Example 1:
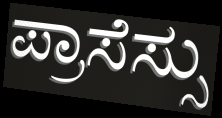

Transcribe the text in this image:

ಪ್ರಾಸೆಸ್ಸು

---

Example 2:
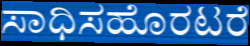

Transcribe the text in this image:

ಸಾಧಿಸಹೊರಟರೆ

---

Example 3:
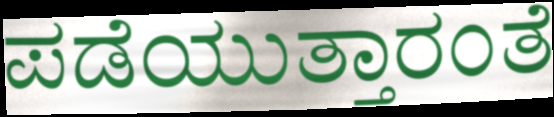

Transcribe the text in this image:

ಪಡೆಯುತ್ತಾರಂತೆ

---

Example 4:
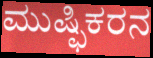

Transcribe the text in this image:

ಮುಷ್ಫಿಕರನ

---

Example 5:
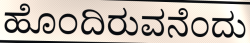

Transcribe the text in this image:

ಹೊಂದಿರುವನೆಂದು